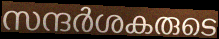
സന്ദർശകരുടെ